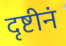
दृष्टीनं